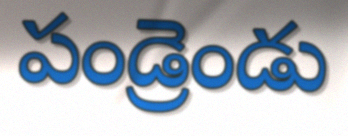
పండ్రెండు